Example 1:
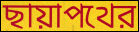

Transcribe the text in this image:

ছায়াপথের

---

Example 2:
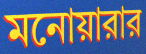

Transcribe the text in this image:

মনোয়ারার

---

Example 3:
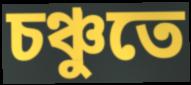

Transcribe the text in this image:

চঞ্চুতে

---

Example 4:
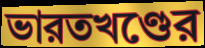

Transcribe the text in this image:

ভারতখণ্ডের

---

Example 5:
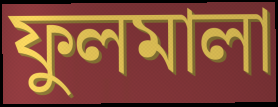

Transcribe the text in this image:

ফুলমালা